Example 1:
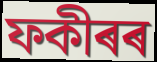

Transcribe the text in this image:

ফকীৰৰ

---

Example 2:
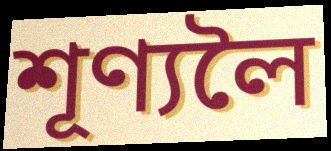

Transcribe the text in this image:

শূণ্যলৈ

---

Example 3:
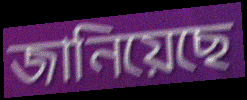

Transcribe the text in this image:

জানিয়েছে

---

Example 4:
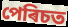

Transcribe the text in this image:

পেৰিচত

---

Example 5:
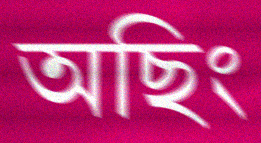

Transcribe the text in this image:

অছিং